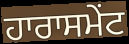
ਹਾਰਾਸਮੇਂਟ